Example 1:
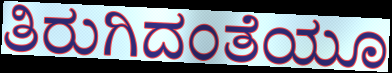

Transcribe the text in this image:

ತಿರುಗಿದಂತೆಯೂ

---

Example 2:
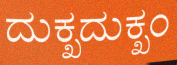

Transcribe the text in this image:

ದುಕ್ಖದುಕ್ಖಂ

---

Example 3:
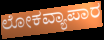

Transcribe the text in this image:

ಲೋಕವ್ಯಾಪಾರ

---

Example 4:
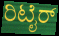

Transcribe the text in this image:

ರಿಟೈರ್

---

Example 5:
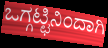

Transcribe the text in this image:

ಒಗ್ಗಟ್ಟಿನಿಂದಾಗಿ